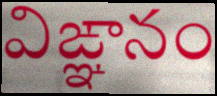
విఙ్ఞానం